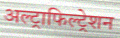
अल्ट्राफिल्ट्रेशन